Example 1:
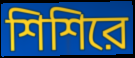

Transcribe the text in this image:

শিশিরে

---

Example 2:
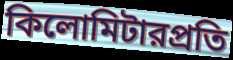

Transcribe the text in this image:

কিলোমিটারপ্রতি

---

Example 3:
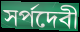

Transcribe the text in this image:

সর্পদেবী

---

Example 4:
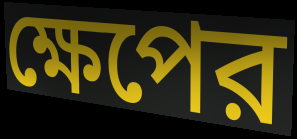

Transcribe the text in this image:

ক্ষেপের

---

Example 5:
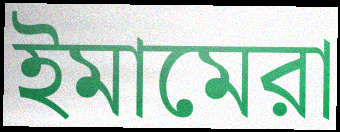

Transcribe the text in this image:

ইমামেরা